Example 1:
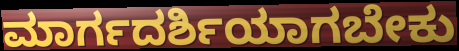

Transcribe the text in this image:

ಮಾರ್ಗದರ್ಶಿಯಾಗಬೇಕು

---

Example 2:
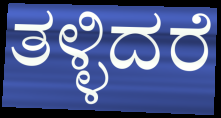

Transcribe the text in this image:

ತಳ್ಳಿದರೆ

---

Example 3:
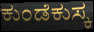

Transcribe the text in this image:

ಕುಂಡೆಕುಸ್ಕ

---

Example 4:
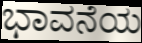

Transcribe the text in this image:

ಭಾವನೆಯ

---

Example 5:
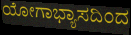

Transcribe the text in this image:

ಯೋಗಾಭ್ಯಾಸದಿಂದ